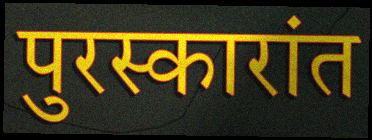
पुरस्कारांत